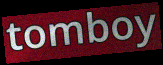
tomboy